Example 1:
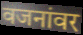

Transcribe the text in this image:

वजनांवर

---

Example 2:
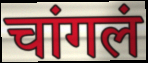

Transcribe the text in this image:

चांगलं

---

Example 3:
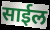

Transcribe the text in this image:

साईल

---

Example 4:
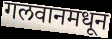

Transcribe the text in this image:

गलवानमधून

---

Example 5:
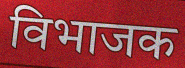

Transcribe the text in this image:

विभाजक